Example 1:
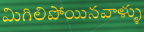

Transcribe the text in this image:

మిగిలిపోయినవాళ్ళు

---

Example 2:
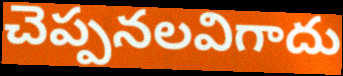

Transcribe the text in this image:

చెప్పనలవిగాదు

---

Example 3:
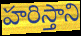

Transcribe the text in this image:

హరిస్తాని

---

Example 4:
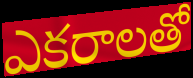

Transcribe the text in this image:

ఎకరాలతో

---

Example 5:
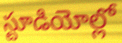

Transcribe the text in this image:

స్టూడియోల్లో